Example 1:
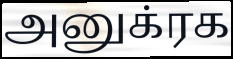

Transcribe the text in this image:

அனுக்ரக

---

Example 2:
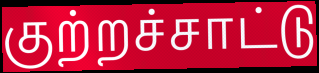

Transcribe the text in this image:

குற்றச்சாட்டு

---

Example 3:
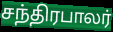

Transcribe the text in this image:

சந்திரபாலர்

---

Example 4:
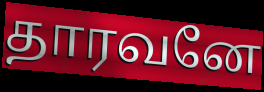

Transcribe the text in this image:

தாரவனே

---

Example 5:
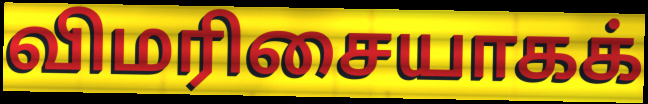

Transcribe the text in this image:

விமரிசையாகக்